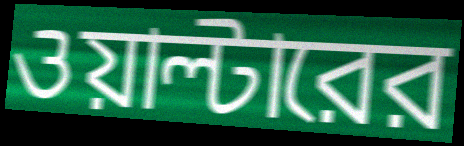
ওয়াল্টারের